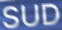
SUD